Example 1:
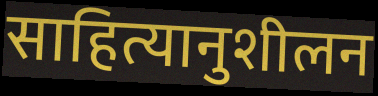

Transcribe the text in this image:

साहित्यानुशीलन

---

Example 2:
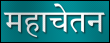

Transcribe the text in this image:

महाचेतन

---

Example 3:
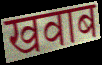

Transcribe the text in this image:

खवाब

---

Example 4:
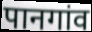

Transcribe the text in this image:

पानगांव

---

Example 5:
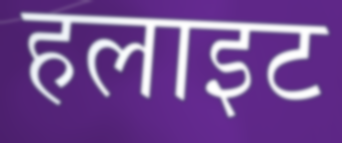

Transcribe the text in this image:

हलाइट